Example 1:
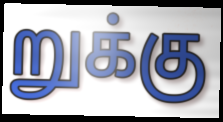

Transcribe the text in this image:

றுக்கு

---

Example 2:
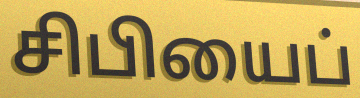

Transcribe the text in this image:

சிபியைப்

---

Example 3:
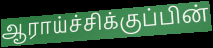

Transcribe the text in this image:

ஆராய்ச்சிக்குப்பின்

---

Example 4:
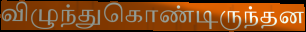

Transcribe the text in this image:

விழுந்துகொண்டிருந்தன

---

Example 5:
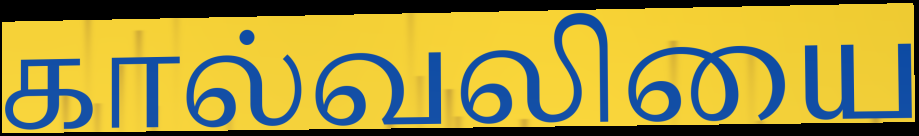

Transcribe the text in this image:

கால்வலியை